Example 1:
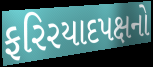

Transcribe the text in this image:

ફરિરયાદપક્ષનો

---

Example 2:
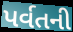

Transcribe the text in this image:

પર્વતની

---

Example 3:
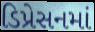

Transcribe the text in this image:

ડિપ્રેસનમાં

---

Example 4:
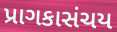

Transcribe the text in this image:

પ્રાગકાસંચય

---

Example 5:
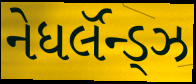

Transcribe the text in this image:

નેધર્લૅન્ડ્ઝ